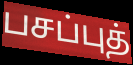
பசப்புத்